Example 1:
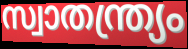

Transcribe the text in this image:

സ്വാതന്ത്ര്യം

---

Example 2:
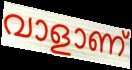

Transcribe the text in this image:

വാളാണ്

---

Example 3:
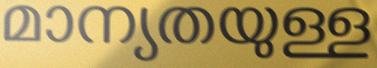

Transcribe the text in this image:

മാന്യതയുള്ള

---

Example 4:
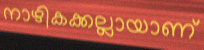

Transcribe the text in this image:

നാഴികക്കല്ലായാണ്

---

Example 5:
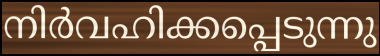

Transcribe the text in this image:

നിർവഹിക്കപ്പെടുന്നു